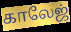
காலேஜ்